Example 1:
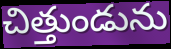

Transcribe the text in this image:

చిత్తుండును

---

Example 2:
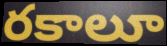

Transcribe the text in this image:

రకాలూ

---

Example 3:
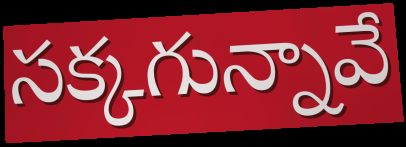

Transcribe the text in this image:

సక్కగున్నావే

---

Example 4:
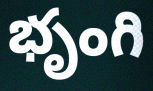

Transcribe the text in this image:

భృంగి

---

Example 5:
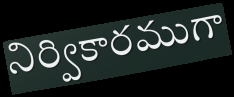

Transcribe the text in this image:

నిర్వికారముగా